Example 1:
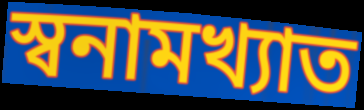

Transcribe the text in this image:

স্বনামখ্যাত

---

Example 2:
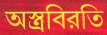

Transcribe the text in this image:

অস্ত্রবিরতি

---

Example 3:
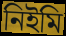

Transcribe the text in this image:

নিইমি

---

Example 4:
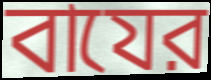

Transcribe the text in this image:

বাযের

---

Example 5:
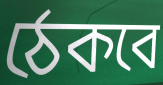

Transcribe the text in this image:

ঠেকবে